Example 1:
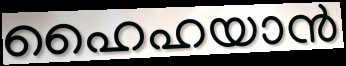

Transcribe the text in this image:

ഹൈഹയാൻ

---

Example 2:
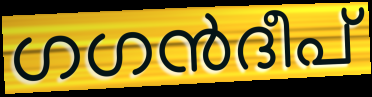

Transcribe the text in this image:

ഗഗൻദീപ്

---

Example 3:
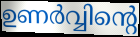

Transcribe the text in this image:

ഉണർവ്വിന്റെ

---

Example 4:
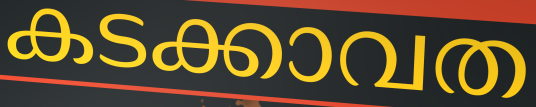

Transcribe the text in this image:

കടക്കാവത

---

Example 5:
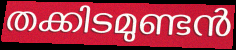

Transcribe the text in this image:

തക്കിടമുണ്ടൻ